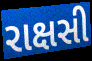
રાક્ષસી